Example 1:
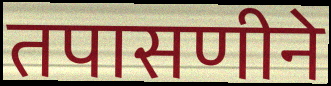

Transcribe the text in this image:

तपासणीने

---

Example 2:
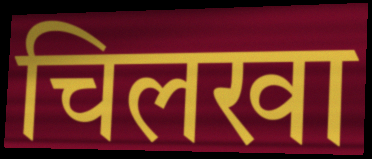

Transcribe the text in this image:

चिलखा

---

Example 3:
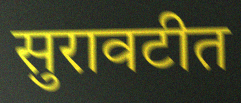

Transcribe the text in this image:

सुरावटीत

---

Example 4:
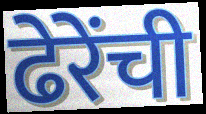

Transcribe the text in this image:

ढेरेंची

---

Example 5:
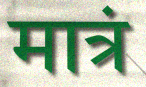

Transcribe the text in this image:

मात्रं